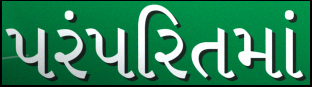
પરંપરિતમાં